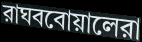
রাঘববোয়ালেরা